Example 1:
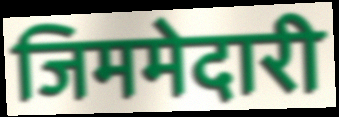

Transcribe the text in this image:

जिममेदारी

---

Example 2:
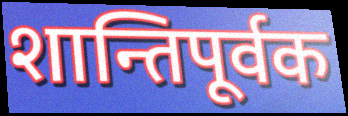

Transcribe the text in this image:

शान्तिपूर्वक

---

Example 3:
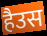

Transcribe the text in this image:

हैउस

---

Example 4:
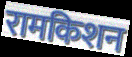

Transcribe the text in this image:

रामकिशन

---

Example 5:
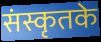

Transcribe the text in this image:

संस्कृतके